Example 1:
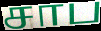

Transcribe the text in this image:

சாப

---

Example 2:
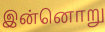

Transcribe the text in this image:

இன்னொறு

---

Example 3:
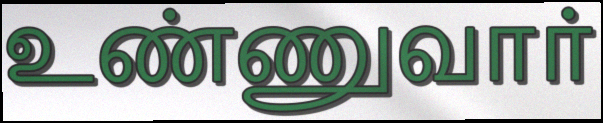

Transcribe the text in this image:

உண்ணுவார்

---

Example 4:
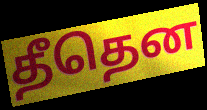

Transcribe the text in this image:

தீதென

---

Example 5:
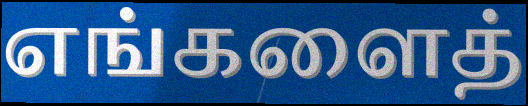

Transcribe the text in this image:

எங்களைத்